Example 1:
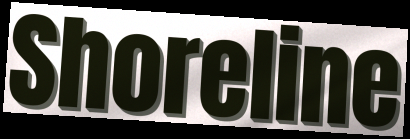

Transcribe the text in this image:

Shoreline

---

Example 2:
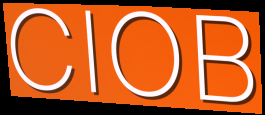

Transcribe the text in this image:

CIOB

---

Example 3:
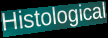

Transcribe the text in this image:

Histological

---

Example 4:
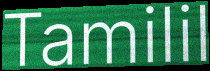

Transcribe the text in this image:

Tamilil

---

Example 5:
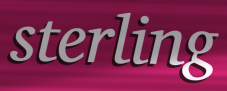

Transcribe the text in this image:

sterling